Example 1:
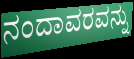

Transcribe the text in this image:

ನಂದಾವರವನ್ನು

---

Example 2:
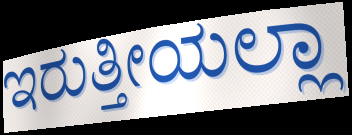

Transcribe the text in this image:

ಇರುತ್ತೀಯಲ್ಲಾ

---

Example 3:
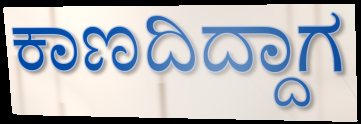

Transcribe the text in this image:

ಕಾಣದಿದ್ದಾಗ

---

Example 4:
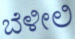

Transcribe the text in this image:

ಬೆಳೀಲಿ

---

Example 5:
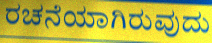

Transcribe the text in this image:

ರಚನೆಯಾಗಿರುವುದು